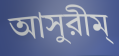
আসুরীম্